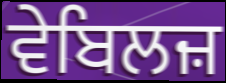
ਵੇਬਿਲਜ਼